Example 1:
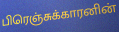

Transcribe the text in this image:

பிரெஞ்சுக்காரனின்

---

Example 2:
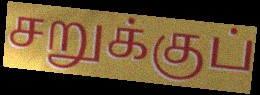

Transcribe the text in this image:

சறுக்குப்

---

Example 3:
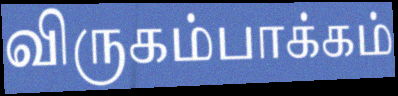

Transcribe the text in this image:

விருகம்பாக்கம்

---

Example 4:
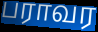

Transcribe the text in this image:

பராவர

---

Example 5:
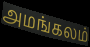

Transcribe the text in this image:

அமங்கலம்